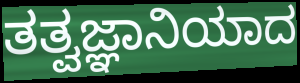
ತತ್ವಜ್ಞಾನಿಯಾದ